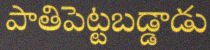
పాతిపెట్టబడ్డాడు